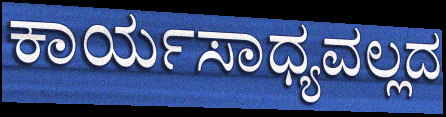
ಕಾರ್ಯಸಾಧ್ಯವಲ್ಲದ